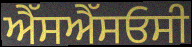
ਐੱਸਐੱਸਓਸੀ